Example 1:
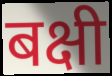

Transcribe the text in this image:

बक्षी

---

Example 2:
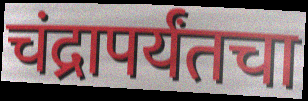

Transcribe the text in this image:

चंद्रापर्यंतचा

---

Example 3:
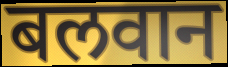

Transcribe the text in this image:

बलवान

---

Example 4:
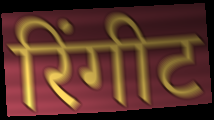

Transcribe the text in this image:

रिंगीट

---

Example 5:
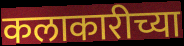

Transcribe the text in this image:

कलाकारीच्या